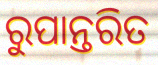
ରୁପାନ୍ତରିତ